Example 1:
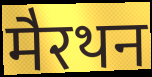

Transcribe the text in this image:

मैरथन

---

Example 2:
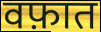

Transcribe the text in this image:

वफ़ात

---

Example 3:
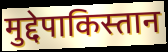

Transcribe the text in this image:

मुद्देपाकिस्तान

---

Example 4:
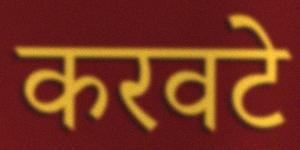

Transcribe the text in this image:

करवटे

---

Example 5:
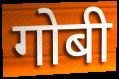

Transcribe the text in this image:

गोबी